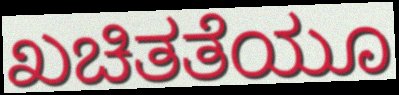
ಖಚಿತತೆಯೂ